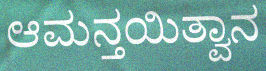
ಆಮನ್ತಯಿತ್ವಾನ